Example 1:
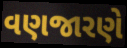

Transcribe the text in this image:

વણજારણે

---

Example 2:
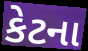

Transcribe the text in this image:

કેટના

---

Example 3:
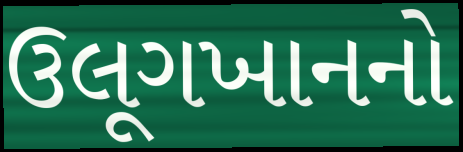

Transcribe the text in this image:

ઉલૂગખાનનો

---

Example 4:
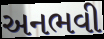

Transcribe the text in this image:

અનભવી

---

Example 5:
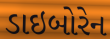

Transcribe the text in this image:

ડાઇબોરેન